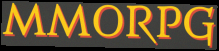
MMORPG